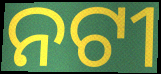
ନଟୀ